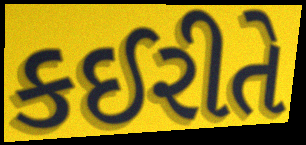
કઈરીતે